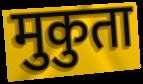
मुकुता